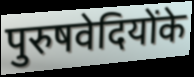
पुरुषवेदियोंके